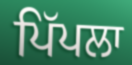
ਪਿੱਪਲਾ